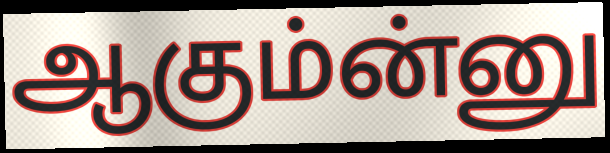
ஆகும்ன்னு